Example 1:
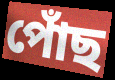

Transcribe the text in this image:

পোঁছ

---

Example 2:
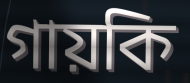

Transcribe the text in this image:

গায়কি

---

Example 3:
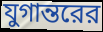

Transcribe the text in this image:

যুগান্তরের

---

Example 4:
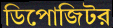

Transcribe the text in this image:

ডিপোজিটর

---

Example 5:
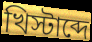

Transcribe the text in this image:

খিস্টাব্দে